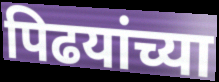
पिढयांच्या